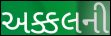
અક્કલની